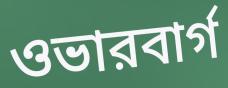
ওভারবার্গ